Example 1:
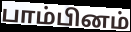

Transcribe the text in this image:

பாம்பினம்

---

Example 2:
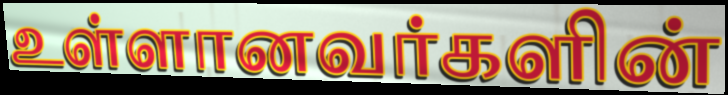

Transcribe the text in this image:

உள்ளானவர்களின்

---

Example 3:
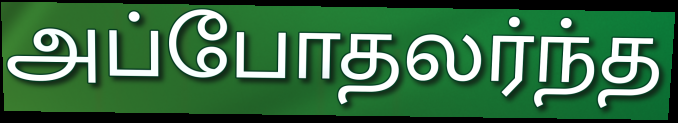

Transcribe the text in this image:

அப்போதலர்ந்த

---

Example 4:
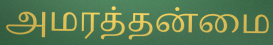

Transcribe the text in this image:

அமரத்தன்மை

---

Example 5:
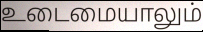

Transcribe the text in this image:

உடைமையாலும்